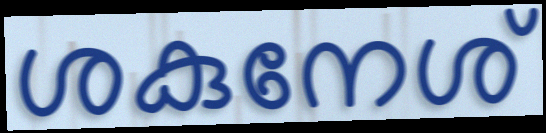
ശകുനേശ്